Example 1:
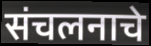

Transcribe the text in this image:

संचलनाचे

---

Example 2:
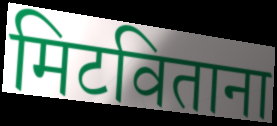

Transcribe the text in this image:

मिटविताना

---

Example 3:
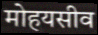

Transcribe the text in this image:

मोहयसीव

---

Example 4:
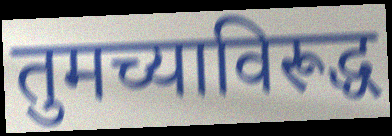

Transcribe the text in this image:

तुमच्याविरूद्ध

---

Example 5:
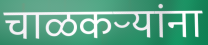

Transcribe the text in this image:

चाळकऱ्यांना